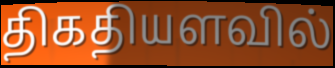
திகதியளவில்